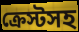
ক্রেস্টসহ